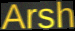
Arsh